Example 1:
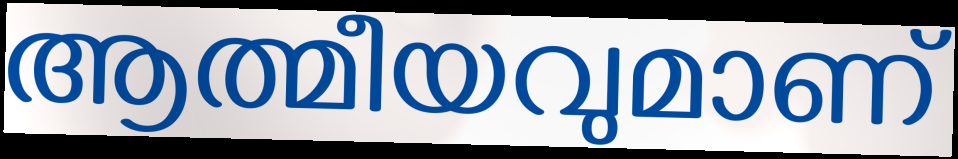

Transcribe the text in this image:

ആത്മീയവുമാണ്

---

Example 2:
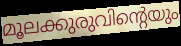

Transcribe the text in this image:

മൂലക്കുരുവിന്റെയും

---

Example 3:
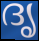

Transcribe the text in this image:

ദൃ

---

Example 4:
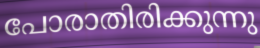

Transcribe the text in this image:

പോരാതിരിക്കുന്നു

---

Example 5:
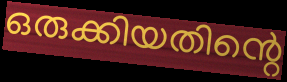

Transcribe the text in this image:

ഒരുക്കിയതിന്റെ